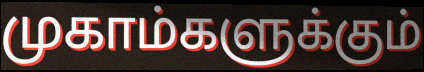
முகாம்களுக்கும்